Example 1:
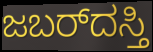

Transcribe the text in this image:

ಜಬರ್‌ದಸ್ತಿ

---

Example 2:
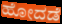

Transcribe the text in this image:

ಹೋದಡೆ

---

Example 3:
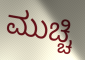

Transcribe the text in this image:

ಮುಚ್ಚಿ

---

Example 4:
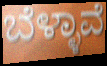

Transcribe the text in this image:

ಬೆಳ್ಳಾವೆ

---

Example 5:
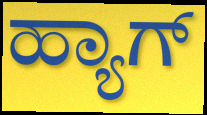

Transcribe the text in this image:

ಹ್ಯಾಗ್